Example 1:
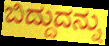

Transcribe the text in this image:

ಬಿದ್ದುದನ್ನು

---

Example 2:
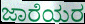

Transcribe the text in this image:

ಜಾರೆಯರ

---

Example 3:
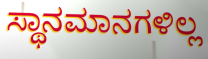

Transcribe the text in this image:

ಸ್ಥಾನಮಾನಗಳಿಲ್ಲ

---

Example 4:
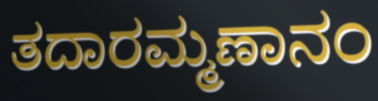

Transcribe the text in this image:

ತದಾರಮ್ಮಣಾನಂ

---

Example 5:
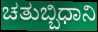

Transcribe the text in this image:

ಚತುಬ್ಬಿಧಾನಿ